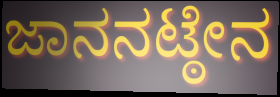
ಜಾನನಟ್ಠೇನ